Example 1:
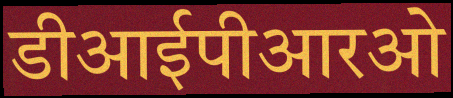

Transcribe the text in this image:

डीआईपीआरओ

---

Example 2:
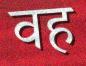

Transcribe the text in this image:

वह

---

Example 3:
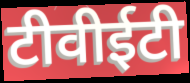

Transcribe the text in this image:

टीवीईटी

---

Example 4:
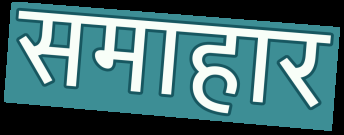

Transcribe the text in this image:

समाहार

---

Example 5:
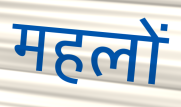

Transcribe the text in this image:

महलों